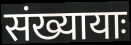
संख्यायाः